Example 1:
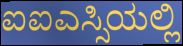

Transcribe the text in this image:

ಐಐಎಸ್ಸಿಯಲ್ಲಿ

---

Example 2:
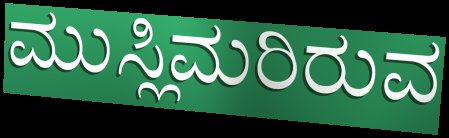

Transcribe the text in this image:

ಮುಸ್ಲಿಮರಿರುವ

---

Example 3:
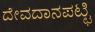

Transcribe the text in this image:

ದೇವದಾನಪಟ್ಟಿ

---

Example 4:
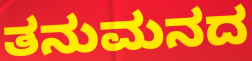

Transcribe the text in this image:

ತನುಮನದ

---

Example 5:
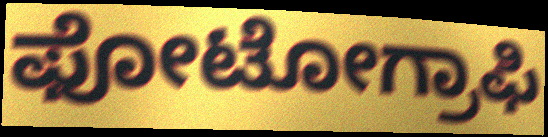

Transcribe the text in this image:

ಫೋಟೋಗ್ರಾಫಿ